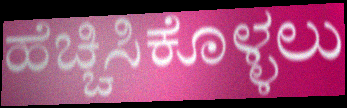
ಹೆಚ್ಚಿಸಿಕೊಳ್ಳಲು